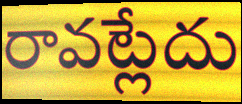
రావట్లేదు